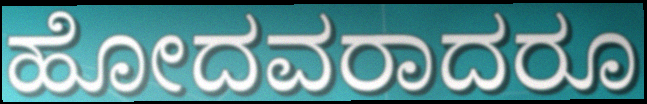
ಹೋದವರಾದರೂ